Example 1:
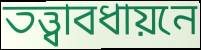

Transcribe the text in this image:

তত্ত্বাবধায়নে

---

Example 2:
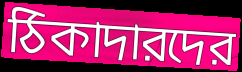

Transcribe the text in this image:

ঠিকাদারদের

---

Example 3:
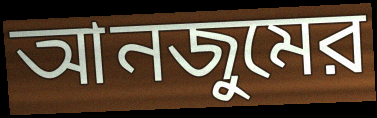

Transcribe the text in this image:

আনজুমের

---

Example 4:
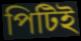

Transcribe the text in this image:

পিটিই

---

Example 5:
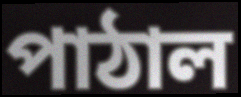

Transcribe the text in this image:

পাঠাল